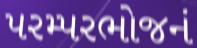
પરમ્પરભોજનં